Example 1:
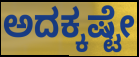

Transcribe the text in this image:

ಅದಕ್ಕಷ್ಟೇ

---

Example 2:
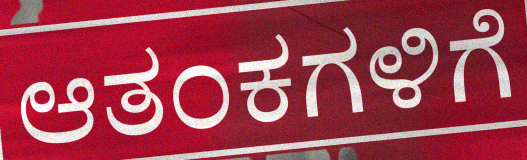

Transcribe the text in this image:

ಆತಂಕಗಳಿಗೆ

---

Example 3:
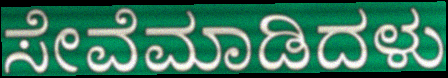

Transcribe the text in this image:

ಸೇವೆಮಾಡಿದಳು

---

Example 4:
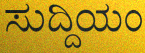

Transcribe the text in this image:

ಸುದ್ದಿಯಂ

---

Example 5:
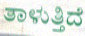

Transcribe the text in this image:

ತಾಳುತ್ತಿದೆ